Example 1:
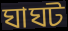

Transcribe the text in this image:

ঘাঘট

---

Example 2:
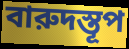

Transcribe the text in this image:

বারুদস্তূপ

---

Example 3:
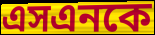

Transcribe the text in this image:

এসএনকে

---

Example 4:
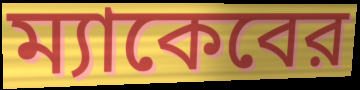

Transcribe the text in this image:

ম্যাকেবের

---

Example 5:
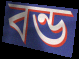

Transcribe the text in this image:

বন্ড